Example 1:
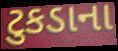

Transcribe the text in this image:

ટુકડાના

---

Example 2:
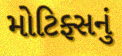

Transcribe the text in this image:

મોટિફ્સનું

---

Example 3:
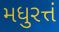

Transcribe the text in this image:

મધુરત્તં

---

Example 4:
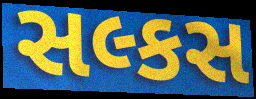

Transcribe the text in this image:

સલ્કસ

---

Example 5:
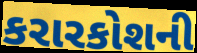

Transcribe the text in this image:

કરારકોશની